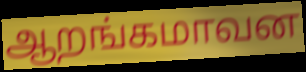
ஆறங்கமாவன